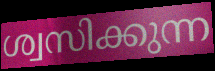
ശ്വസിക്കുന്ന